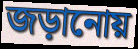
জড়ানোয়